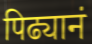
पिढ्यानं